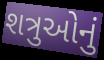
શત્રુઓનું